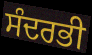
ਸੰਦਰਭੀ